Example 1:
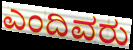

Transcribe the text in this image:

ಎಂದಿವರು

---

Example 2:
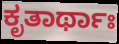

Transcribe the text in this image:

ಕೃತಾರ್ಥಾಃ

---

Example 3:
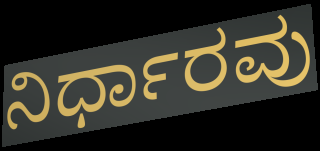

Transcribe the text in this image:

ನಿರ್ಧಾರವು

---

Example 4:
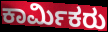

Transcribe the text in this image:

ಕಾರ್ಮಿಕರು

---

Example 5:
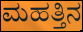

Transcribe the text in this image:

ಮಹತ್ತಿನ